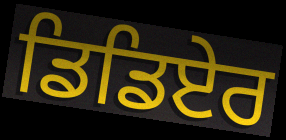
ਡਿਡਿਏਰ